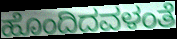
ಹೊಂದಿದವಳಂತೆ